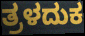
ತ್ರಳದುಕ